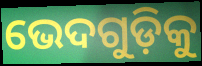
ଭେଦଗୁଡ଼ିକୁ